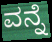
ವನ್ನೆ